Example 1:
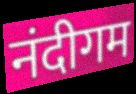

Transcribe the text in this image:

नंदीगम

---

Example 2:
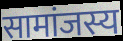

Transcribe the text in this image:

सामांजस्य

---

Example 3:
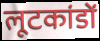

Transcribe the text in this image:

लूटकांडों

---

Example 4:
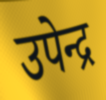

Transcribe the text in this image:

उपेन्द्र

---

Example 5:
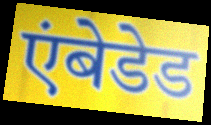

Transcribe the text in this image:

एंबेडेड